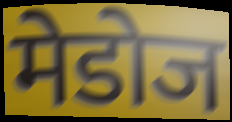
मेडोज